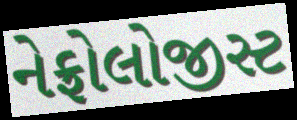
નેફ્રોલોજીસ્ટ